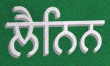
ਲੈਨਿਨ